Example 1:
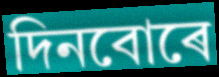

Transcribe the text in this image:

দিনবোৰে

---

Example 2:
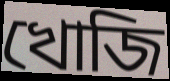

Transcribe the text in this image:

খোজি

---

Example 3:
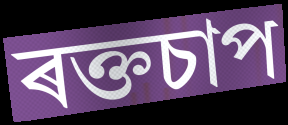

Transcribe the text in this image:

ৰক্তচাপ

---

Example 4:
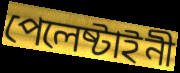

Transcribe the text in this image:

পেলেষ্টাইনী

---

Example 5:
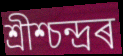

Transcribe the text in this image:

শ্ৰীশ্চন্দ্ৰৰ